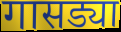
गासड्या